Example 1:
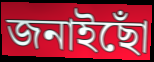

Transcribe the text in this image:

জনাইছোঁ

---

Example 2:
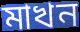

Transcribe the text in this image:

মাখন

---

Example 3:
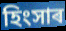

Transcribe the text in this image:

হিংসাৰ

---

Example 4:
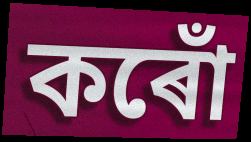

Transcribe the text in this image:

কৰোঁ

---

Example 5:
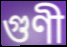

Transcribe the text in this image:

গুণী